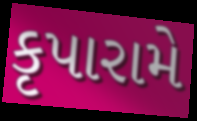
કૃપારામે